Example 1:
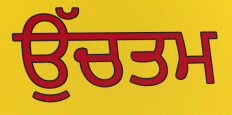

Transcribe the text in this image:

ਉੱਚਤਮ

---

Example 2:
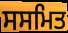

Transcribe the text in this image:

ਸਸਮਿਤ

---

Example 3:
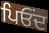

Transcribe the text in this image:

ਪਿਓਂਦ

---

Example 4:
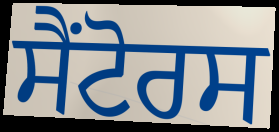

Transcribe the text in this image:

ਸੈਂਟੋਰਸ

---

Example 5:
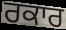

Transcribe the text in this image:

ਰਕਾਰ